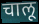
चालू